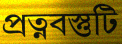
প্রত্নবস্তুটি